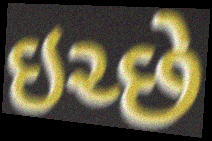
ઇચ્છે